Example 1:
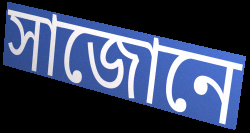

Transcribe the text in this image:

সাজোনে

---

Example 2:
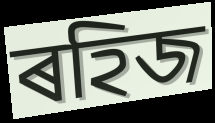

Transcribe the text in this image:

ৰহিজ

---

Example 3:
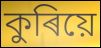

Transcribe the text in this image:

কুৰিয়ে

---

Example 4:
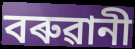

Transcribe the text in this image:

বৰুৱানী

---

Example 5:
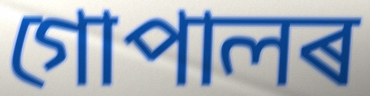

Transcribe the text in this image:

গোপালৰ